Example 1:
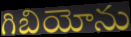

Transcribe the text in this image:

గిబియోను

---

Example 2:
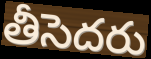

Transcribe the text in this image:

తీసెదరు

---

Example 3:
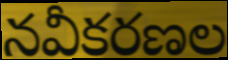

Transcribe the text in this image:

నవీకరణల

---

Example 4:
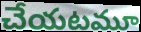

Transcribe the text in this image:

చేయటమూ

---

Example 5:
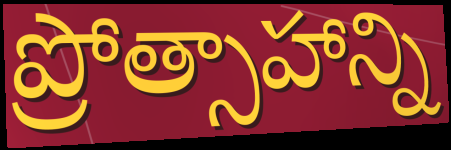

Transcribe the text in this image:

ప్రోత్సాహాన్ని